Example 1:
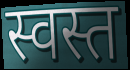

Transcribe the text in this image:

स्वस्त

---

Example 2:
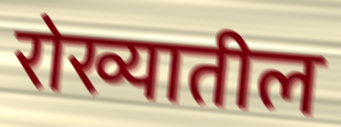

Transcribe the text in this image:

रोख्यातील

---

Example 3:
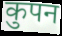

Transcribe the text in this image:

कुपन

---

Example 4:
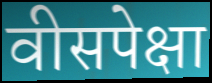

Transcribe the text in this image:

वीसपेक्षा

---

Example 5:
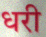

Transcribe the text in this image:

धरी